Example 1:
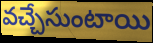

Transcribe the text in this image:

వచ్చేసుంటాయి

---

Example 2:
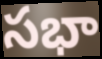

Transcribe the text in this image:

సభా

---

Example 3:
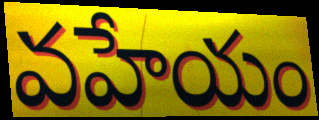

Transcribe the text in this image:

వహేయం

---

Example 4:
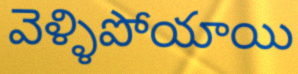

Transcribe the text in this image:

వెళ్ళిపోయాయి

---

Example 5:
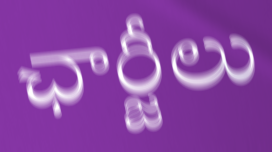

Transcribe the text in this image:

ఛార్జీలు